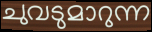
ചുവടുമാറുന്ന